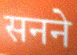
सनने